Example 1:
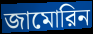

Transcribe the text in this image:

জামোরিন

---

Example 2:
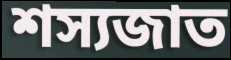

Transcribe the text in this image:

শস্যজাত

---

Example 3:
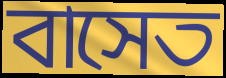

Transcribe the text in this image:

বাসেত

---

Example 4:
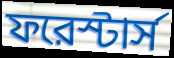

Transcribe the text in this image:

ফরেস্টার্স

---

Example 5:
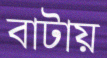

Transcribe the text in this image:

বাটায়